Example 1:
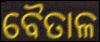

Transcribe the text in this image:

ବୈତାଳ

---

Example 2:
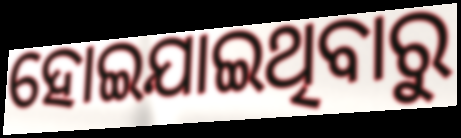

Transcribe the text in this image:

ହୋଇଯାଇଥିବାରୁ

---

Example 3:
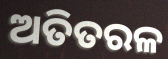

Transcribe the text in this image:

ଅତିତରଳ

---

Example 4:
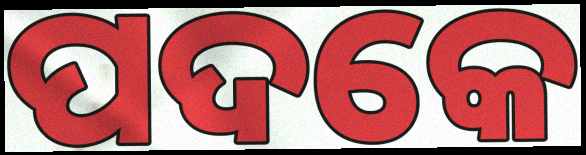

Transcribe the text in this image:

ପଦକେ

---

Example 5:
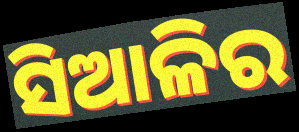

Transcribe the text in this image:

ସିଆଳିର